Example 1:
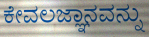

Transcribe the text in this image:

ಕೇವಲಜ್ಞಾನವನ್ನು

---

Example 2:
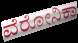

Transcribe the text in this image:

ವೆರೋನಿಕಾ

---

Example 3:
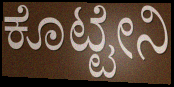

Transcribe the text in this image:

ಕೊಟ್ಟೇನಿ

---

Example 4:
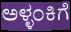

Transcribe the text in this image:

ಅಳ್ಳಂಕಿಗೆ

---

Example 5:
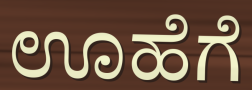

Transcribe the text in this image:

ಊಹೆಗೆ